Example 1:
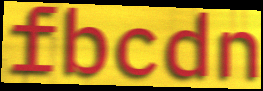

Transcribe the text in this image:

fbcdn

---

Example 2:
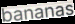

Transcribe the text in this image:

bananas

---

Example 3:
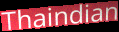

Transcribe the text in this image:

Thaindian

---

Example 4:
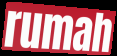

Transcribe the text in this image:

rumah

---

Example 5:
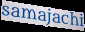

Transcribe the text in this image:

samajachi